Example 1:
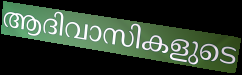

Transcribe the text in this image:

ആദിവാസികളുടെ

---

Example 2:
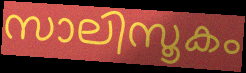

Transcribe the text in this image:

സാലിസൂകം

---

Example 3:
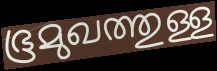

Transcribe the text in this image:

ഭൂമുഖത്തുള്ള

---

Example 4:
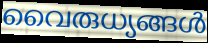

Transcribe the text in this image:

വൈരുധ്യങ്ങൾ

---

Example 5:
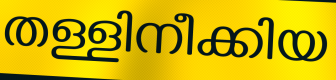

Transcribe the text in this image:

തള്ളിനീക്കിയ